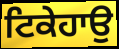
ਟਿਕੇਹਾਉ